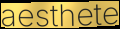
aesthete